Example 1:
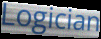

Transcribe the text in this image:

Logician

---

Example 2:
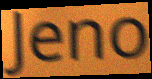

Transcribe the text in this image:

Jeno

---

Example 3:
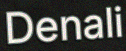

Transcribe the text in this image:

Denali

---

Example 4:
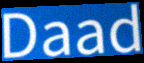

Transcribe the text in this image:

Daad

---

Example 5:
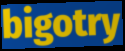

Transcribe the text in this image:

bigotry